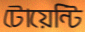
টোয়েন্টি